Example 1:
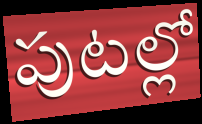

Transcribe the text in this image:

పుటల్లో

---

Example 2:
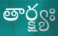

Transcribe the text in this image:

తార్క్ష్యః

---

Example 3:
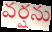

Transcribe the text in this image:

వర్షను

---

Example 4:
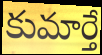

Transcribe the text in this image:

కుమార్తే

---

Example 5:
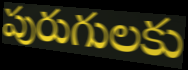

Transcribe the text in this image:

పురుగులకు